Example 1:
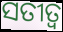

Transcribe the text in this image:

ସତୀତ୍ବ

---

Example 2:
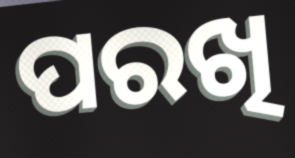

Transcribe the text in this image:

ପରଖି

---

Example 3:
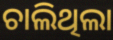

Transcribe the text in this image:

ଚାଲିଥିଲା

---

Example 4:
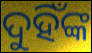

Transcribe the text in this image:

ଦୁହିଁଙ୍କ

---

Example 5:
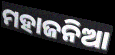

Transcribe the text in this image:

ମହାଜନିଆ